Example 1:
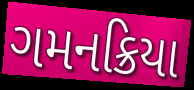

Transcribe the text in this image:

ગમનક્રિયા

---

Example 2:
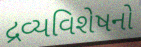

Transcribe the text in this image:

દ્રવ્યવિશેષનો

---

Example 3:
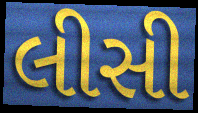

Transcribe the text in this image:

લીસી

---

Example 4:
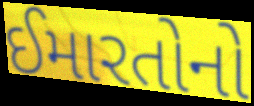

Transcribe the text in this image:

ઈમારતોનો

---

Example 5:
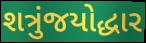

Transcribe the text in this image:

શત્રુંજયોદ્ધાર